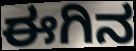
ಈಗಿನ